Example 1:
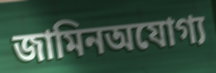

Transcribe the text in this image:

জামিনঅযোগ্য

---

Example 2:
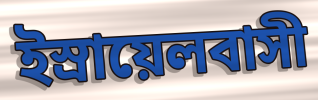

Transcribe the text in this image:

ইস্রায়েলবাসী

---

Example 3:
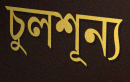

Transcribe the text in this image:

চুলশূন্য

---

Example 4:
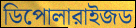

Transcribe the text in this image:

ডিপোলারাইজড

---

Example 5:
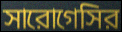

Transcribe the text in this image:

সারোগেসির